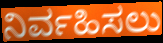
ನಿರ್ವಹಿಸಲು